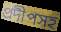
প্রদীপসহ